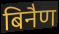
बिनैण